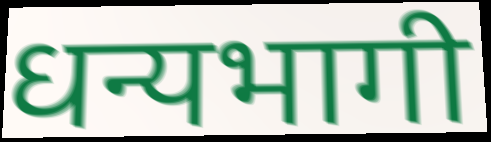
धन्यभागी